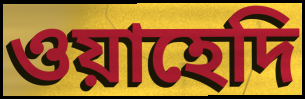
ওয়াহেদি